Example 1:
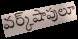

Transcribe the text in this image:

వర్క్‌షాపులూ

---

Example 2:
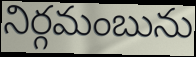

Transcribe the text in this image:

నిర్గమంబును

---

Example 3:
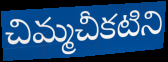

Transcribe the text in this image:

చిమ్మచీకటిని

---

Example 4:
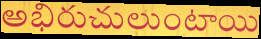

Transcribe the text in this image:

అభిరుచులుంటాయి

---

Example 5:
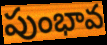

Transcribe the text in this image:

పుంభావ